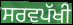
ਸਰਵਪੱਖੀ